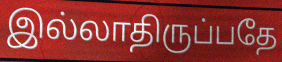
இல்லாதிருப்பதே